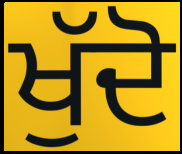
ਖੁੱਦੋ